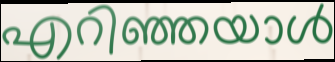
എറിഞ്ഞയാൾ